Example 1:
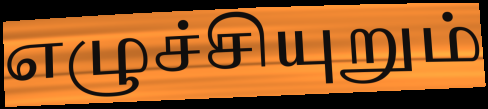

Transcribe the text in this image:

எழுச்சியுறும்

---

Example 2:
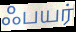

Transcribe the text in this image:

ஃபயர்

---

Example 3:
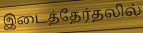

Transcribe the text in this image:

இடைத்தேர்தலில்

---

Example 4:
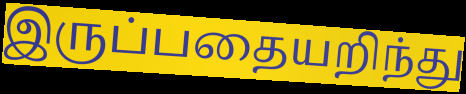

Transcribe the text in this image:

இருப்பதையறிந்து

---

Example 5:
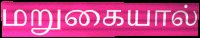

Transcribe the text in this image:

மறுகையால்